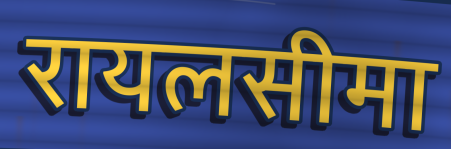
रायलसीमा